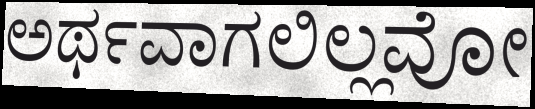
ಅರ್ಥವಾಗಲಿಲ್ಲವೋ